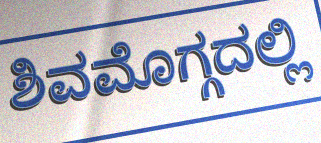
ಶಿವಮೊಗ್ಗದಲ್ಲಿ